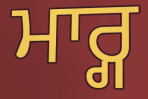
ਮਾਰ੍ਗ